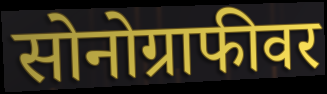
सोनोग्राफीवर